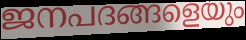
ജനപദങ്ങളെയും